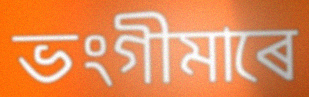
ভংগীমাৰে